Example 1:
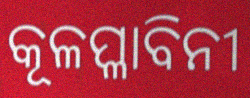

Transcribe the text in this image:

କୂଳପ୍ଳାବିନୀ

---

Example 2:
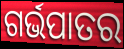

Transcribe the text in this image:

ଗର୍ଭପାତର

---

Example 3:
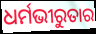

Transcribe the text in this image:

ଧର୍ମଭୀରୁତାର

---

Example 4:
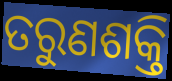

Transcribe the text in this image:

ତରୁଣଶକ୍ତି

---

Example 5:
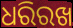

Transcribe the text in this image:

ଧରିରଖ